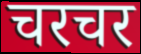
चरचर